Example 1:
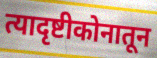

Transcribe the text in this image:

त्यादृष्टीकोनातून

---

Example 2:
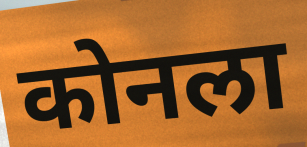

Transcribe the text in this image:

कोनला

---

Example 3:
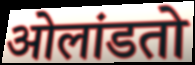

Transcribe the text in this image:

ओलांडतो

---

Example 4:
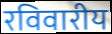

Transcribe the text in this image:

रविवारीय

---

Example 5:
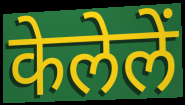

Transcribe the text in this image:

केलेलें